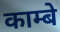
काम्बे